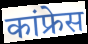
कांफ्रेस